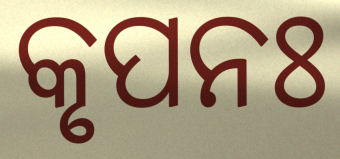
କୃପନଃ